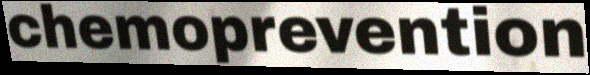
chemoprevention